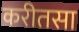
करीतसा